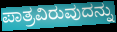
ಪಾತ್ರವಿರುವುದನ್ನು